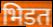
भिडत